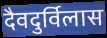
दैवदुर्विलास